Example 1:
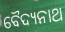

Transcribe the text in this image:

ବୈଦ୍ୟନାଥ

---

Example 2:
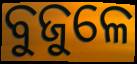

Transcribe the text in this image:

ବୁଜୁଳେ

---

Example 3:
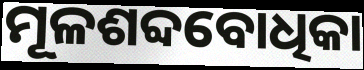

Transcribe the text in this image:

ମୂଳଶବ୍ଦବୋଧିକା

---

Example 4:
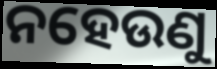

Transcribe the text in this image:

ନହେଉଣୁ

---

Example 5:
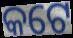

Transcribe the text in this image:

କଟେ